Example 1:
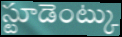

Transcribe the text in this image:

స్టూడెంట్కు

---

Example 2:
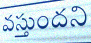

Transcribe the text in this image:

వస్తుందని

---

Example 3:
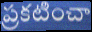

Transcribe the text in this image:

ప్రకటించా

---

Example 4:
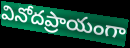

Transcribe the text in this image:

వినోదప్రాయంగా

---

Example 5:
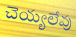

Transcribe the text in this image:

చెయ్యలేవు